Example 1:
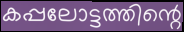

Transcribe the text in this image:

കപ്പലോട്ടത്തിന്റെ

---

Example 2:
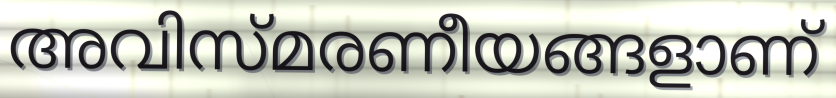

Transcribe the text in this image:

അവിസ്മരണീയങ്ങളാണ്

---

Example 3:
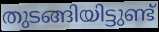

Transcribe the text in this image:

തുടങ്ങിയിട്ടുണ്ട്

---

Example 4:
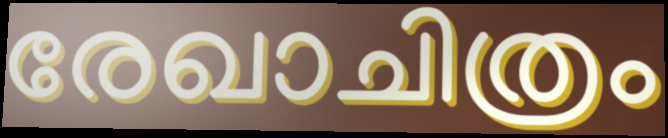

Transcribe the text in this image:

രേഖാചിത്രം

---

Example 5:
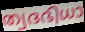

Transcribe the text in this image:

ത്വദഭിധാ